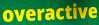
overactive